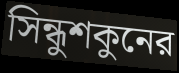
সিন্ধুশকুনের